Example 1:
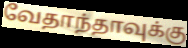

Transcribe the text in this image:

வேதாந்தாவுக்கு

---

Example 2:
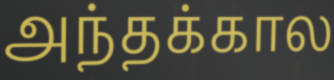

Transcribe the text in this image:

அந்தக்கால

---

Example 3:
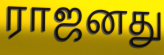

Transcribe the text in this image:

ராஜனது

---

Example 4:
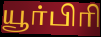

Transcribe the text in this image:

யூர்பிரி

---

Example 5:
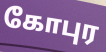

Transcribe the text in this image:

கோபுர